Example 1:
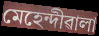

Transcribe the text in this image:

মেহেন্দীৱালা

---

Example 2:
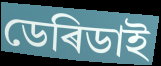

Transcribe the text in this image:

ডেৰিডাই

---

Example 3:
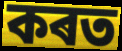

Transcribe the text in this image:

কৰত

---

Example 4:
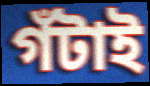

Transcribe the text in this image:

গঁটাই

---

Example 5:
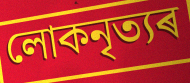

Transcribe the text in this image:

লোকনৃত্যৰ